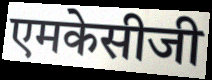
एमकेसीजी